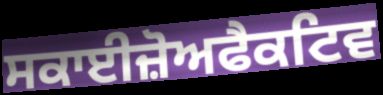
ਸਕਾਈਜ਼ੋਅਫੈਕਟਿਵ